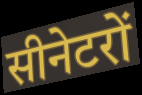
सीनेटरों